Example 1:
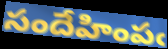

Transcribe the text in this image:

సందేహింపఁ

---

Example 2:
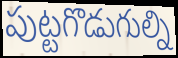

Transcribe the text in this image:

పుట్టగొడుగుల్ని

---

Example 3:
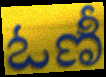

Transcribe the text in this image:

ఓణీ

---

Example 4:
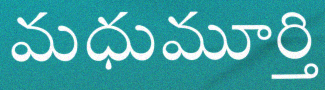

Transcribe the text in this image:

మధుమూర్తి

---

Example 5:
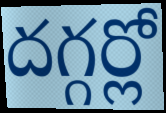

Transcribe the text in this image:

దగ్గర్లో